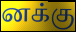
னக்கு